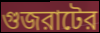
গুজরাটের